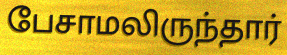
பேசாமலிருந்தார்